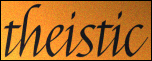
theistic